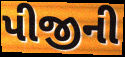
પીજીની